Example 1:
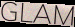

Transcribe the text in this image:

GLAM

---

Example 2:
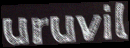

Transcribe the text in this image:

uruvil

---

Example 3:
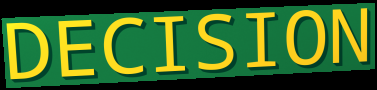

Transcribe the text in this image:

DECISION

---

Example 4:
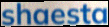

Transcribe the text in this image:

shaesta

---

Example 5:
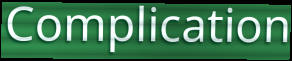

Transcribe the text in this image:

Complication